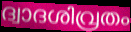
ദ്വാദശിവ്രതം